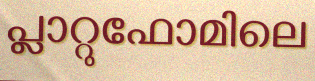
പ്ലാറ്റുഫോമിലെ